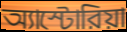
অ্যাস্টোরিয়া